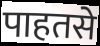
पाहतसे